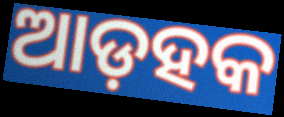
ଆଡ଼ହକ